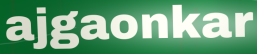
ajgaonkar